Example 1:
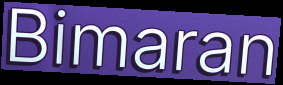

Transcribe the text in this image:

Bimaran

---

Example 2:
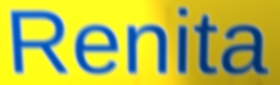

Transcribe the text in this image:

Renita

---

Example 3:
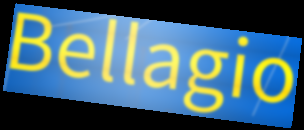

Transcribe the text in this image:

Bellagio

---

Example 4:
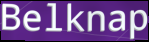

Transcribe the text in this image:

Belknap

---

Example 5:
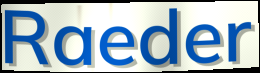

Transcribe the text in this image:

Raeder